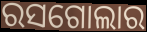
ରସଗୋଲାର